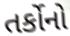
તર્કોનો